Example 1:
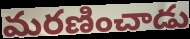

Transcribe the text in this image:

మరణించాడు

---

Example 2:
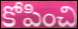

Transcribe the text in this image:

కోపించి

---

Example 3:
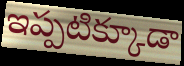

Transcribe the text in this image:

ఇప్పటిక్కూడా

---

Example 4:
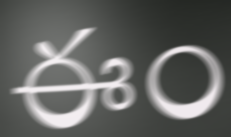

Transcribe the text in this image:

ఈం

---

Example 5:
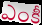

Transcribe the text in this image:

ఎంకీ